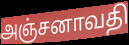
அஞ்சனாவதி